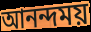
আনন্দময়